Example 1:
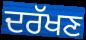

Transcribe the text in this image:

ਦਰੱਖਣ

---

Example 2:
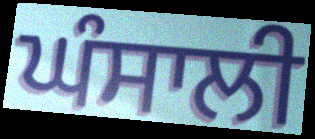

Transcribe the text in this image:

ਘੰਸਾਲੀ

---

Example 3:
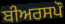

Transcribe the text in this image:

ਬੀਅਰਸਪੌ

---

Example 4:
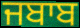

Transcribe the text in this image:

ਜਬਾਬ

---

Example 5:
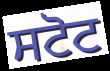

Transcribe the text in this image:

ਸਟੋਟ